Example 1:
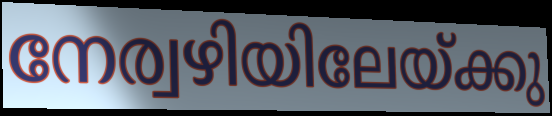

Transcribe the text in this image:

നേര്വഴിയിലേയ്ക്കു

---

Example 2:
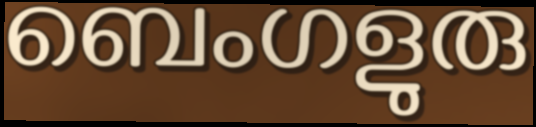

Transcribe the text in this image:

ബെംഗളുരു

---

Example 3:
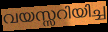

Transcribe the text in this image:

വയസ്സറിയിച്ച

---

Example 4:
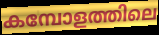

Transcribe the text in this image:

കമ്പോളത്തിലെ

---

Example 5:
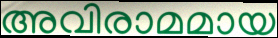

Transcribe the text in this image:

അവിരാമമായ